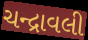
ચન્દ્રાવલી